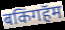
बकिंगहॅम